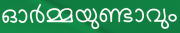
ഓർമ്മയുണ്ടാവും